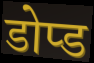
डोप्ड